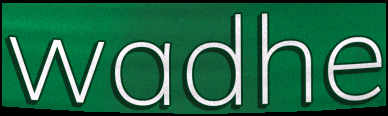
wadhe